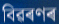
বিৱৰণৰ